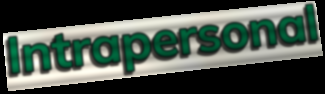
Intrapersonal